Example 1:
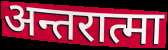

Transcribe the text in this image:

अन्तरात्मा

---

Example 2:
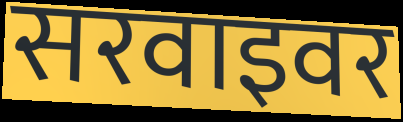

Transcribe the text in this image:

सरवाइवर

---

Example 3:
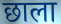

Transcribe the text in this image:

छाला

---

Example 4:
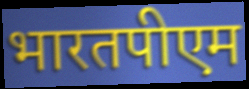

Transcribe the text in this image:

भारतपीएम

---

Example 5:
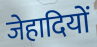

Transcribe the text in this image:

जेहादियों